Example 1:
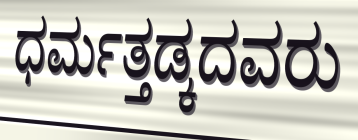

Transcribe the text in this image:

ಧರ್ಮತ್ತಡ್ಕದವರು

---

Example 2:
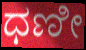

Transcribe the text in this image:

ಧಣೀ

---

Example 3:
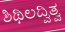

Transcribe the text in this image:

ಶಿಥಿಲದ್ವಿತ್ವ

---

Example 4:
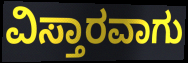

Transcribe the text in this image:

ವಿಸ್ತಾರವಾಗು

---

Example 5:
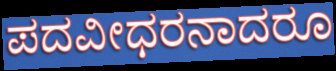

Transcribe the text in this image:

ಪದವೀಧರನಾದರೂ